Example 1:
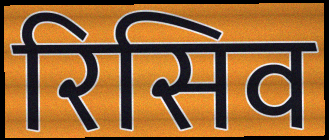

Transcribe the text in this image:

रिसिव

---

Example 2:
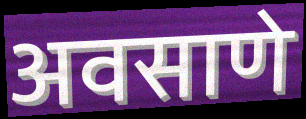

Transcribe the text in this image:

अवसाणे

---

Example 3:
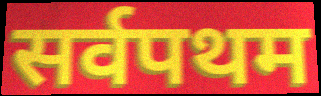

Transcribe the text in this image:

सर्वपथम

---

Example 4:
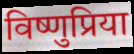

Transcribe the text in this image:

विष्णुप्रिया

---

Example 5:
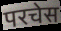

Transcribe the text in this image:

परचेस